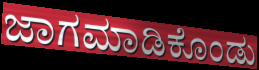
ಜಾಗಮಾಡಿಕೊಂಡು